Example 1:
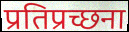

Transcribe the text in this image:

प्रतिप्रच्छना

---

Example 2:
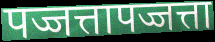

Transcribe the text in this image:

पज्जत्तापज्जत्ता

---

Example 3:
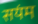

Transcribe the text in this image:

सयंम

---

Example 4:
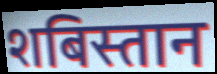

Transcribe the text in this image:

शबिस्तान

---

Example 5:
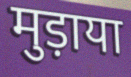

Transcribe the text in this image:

मुड़ाया